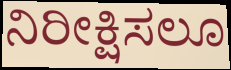
ನಿರೀಕ್ಷಿಸಲೂ